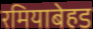
रमियाबेहड